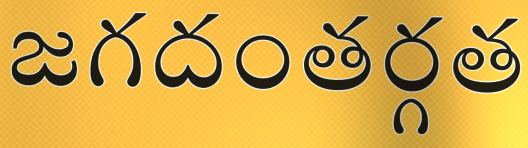
జగదంతర్గత